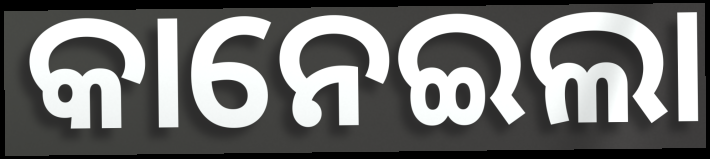
କାନେଇଲା